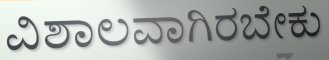
ವಿಶಾಲವಾಗಿರಬೇಕು